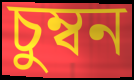
চুম্বন